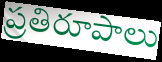
ప్రతిరూపాలు